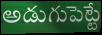
అడుగుపెట్టే